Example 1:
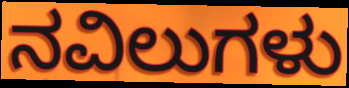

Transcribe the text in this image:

ನವಿಲುಗಳು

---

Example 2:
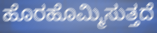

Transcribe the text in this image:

ಹೊರಹೊಮ್ಮಿಸುತ್ತದೆ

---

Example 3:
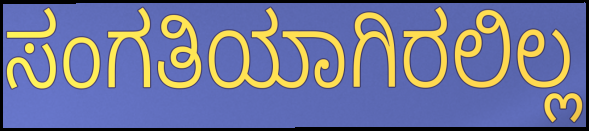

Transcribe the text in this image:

ಸಂಗತಿಯಾಗಿರಲಿಲ್ಲ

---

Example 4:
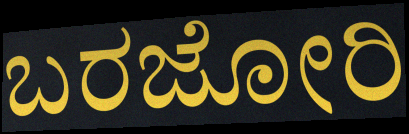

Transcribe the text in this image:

ಬರಜೋರಿ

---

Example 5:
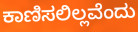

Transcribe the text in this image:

ಕಾಣಿಸಲಿಲ್ಲವೆಂದು